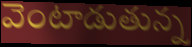
వెంటాడుతున్న